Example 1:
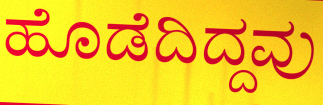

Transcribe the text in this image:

ಹೊಡೆದಿದ್ದವು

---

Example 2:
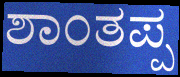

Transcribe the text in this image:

ಶಾಂತಪ್ಪ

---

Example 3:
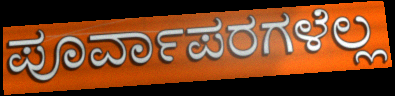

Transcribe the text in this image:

ಪೂರ್ವಾಪರಗಳೆಲ್ಲ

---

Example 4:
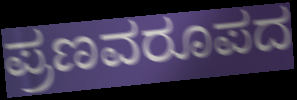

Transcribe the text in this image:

ಪ್ರಣವರೂಪದ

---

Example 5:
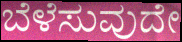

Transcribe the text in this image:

ಬೆಳೆಸುವುದೇ